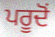
ਪਰੂਦੋਂ